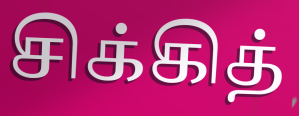
சிக்கித்